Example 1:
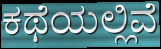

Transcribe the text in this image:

ಕಥೆಯಲ್ಲಿವೆ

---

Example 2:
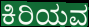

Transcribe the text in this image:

ಕಿರಿಯವ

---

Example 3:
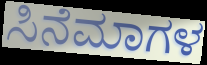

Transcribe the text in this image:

ಸಿನೆಮಾಗಳ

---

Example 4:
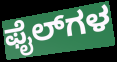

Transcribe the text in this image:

ಫೈಲ್‌ಗಳ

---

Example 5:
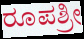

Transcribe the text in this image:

ರೂಪಶ್ರೀ